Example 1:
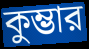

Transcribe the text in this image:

কুম্ভার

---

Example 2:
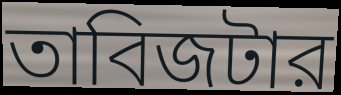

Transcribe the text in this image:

তাবিজটার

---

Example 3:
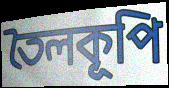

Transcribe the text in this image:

তৈলকূপি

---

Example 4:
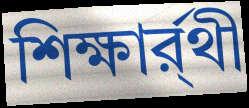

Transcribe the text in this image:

শিক্ষার্র্থী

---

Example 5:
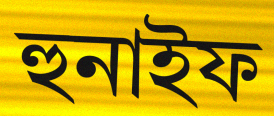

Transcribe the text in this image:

হুনাইফ